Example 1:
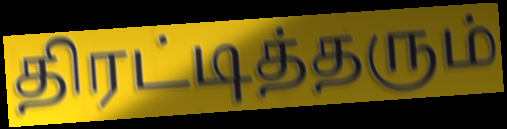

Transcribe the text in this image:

திரட்டித்தரும்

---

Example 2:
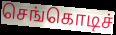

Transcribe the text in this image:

செங்கொடிச்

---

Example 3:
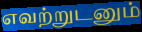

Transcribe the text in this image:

எவற்றுடனும்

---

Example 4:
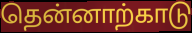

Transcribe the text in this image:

தென்னாற்காடு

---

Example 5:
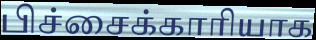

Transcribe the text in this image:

பிச்சைக்காரியாக